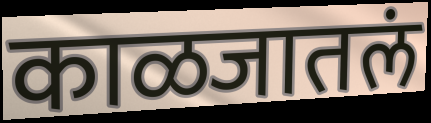
काळजातलं